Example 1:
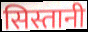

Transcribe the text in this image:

सिस्तानी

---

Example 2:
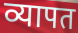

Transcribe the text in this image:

व्यापत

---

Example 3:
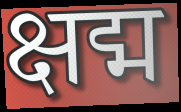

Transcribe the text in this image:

क्षद्म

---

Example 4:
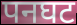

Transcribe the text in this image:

पनघट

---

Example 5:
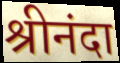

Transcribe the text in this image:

श्रीनंदा